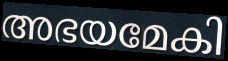
അഭയമേകി